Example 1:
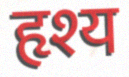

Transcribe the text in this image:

हृश्य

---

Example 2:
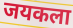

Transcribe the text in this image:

जयकला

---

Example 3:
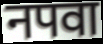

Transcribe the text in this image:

नपवा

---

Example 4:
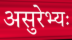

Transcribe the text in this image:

असुरेभ्यः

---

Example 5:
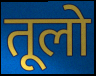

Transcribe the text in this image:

तूलो